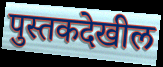
पुस्तकदेखील